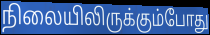
நிலையிலிருக்கும்போது